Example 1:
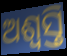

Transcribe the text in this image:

ଅଶ୍ୱସ୍ତି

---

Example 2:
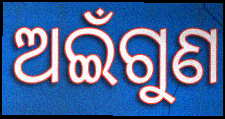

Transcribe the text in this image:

ଅଇଁଗୁଣ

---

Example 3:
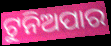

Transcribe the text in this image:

ଟୁନିଅପାର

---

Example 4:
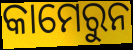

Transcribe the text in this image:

କାମେରୁନ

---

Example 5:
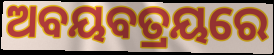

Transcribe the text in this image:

ଅବୟବତ୍ରୟରେ